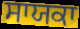
ਸਾਯਕਾ